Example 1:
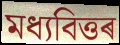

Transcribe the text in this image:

মধ্যবিত্তৰ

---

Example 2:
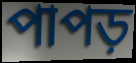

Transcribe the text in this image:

পাপড়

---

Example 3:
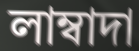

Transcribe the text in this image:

লাম্বাদা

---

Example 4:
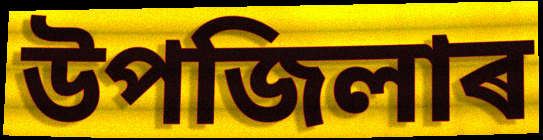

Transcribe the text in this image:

উপজিলাৰ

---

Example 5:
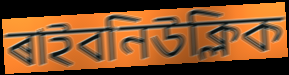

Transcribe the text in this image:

ৰাইবনিউক্লিক